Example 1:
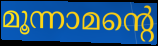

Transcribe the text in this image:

മൂന്നാമന്റെ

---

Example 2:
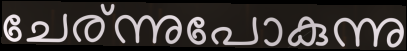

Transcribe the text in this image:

ചേര്ന്നുപോകുന്നു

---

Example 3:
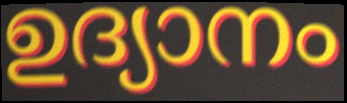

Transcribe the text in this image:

ഉദ്യാനം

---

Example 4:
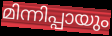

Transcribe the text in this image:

മിന്നിപ്പായും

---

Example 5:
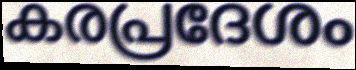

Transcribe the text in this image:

കരപ്രദേശം